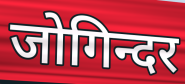
जोगिन्दर